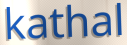
kathal